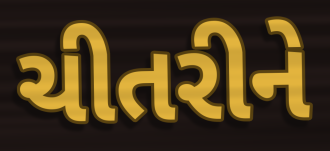
ચીતરીને